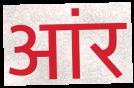
आंर